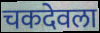
चकदेवला